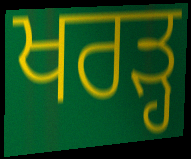
ਖਰੜ੍ਹ